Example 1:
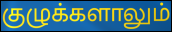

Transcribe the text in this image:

குழுக்களாலும்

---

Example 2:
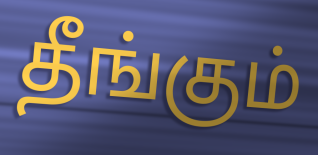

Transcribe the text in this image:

தீங்கும்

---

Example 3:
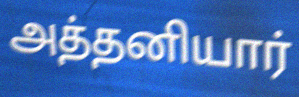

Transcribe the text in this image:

அத்தனியார்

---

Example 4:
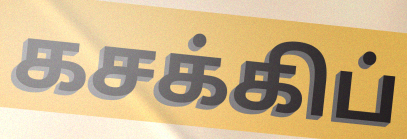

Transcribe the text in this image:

கசக்கிப்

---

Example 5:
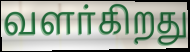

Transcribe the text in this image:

வளர்கிறது